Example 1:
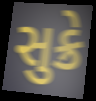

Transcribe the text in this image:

સુક્રે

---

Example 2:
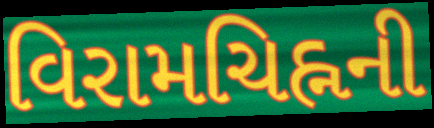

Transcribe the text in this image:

વિરામચિહ્નની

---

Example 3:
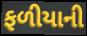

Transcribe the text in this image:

ફળીયાની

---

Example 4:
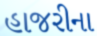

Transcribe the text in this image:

હાજરીના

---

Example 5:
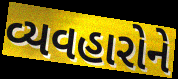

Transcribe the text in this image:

વ્યવહારોને